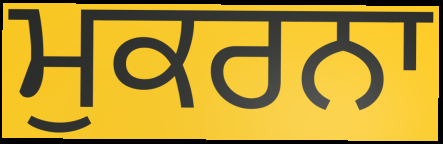
ਮੁਕਰਨਾ